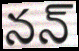
నన్